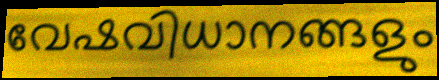
വേഷവിധാനങ്ങളും